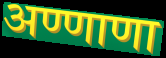
अण्णाणा